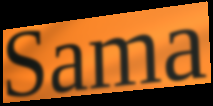
Sama